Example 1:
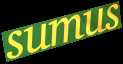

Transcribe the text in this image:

sumus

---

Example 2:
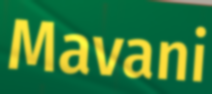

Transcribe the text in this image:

Mavani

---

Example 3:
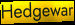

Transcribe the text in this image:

Hedgewar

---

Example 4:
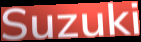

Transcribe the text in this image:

Suzuki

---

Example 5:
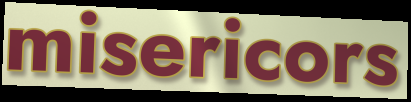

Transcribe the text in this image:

misericors